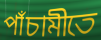
পাঁচামীতে